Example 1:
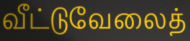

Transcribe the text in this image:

வீட்டுவேலைத்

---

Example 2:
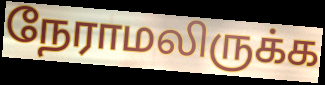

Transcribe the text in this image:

நேராமலிருக்க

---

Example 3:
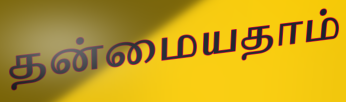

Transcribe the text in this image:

தன்மையதாம்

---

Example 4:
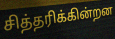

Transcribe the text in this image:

சித்தரிக்கின்றன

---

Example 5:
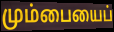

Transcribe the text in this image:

மும்பையைப்